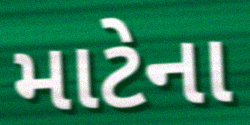
માટેના